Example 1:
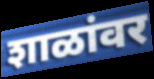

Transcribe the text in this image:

शाळांवर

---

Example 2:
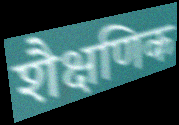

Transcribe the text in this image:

शैक्षणिक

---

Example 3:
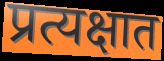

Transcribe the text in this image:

प्रत्यक्षात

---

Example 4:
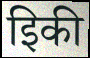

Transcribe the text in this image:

इिकी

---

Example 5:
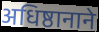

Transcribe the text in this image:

अधिष्ठानाने